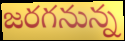
జరగనున్న